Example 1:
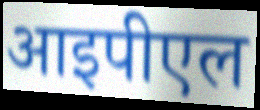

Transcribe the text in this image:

आइपीएल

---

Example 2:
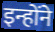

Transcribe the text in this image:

इन्होंने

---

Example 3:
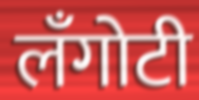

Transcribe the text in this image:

लँगोटी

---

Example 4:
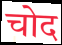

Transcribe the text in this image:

चोद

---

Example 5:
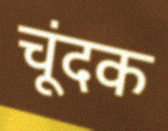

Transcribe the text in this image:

चूंदक